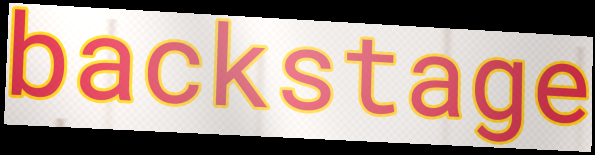
backstage